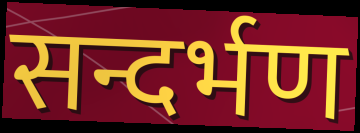
सन्दर्भण